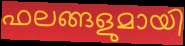
ഫലങ്ങളുമായി